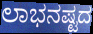
ಲಾಭನಷ್ಟದ